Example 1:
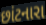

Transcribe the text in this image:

છાંટનારા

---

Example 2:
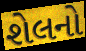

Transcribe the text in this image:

શેલનો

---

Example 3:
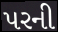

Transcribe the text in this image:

પરની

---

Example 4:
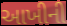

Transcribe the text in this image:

આખીની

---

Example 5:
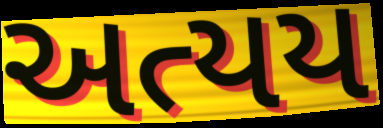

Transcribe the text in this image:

અત્યય